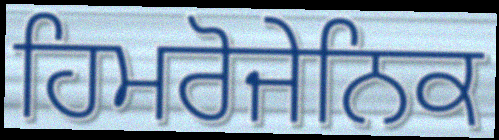
ਹਿਮਰੋਜੇਨਿਕ